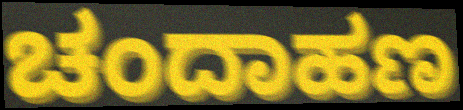
ಚಂದಾಹಣ